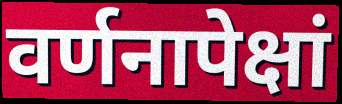
वर्णनापेक्षां